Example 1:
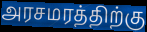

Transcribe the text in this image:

அரசமரத்திற்கு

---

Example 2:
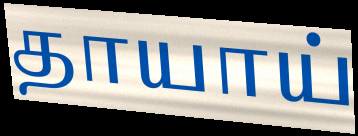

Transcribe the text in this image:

தாயாய்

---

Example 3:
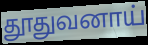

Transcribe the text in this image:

தூதுவனாய்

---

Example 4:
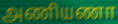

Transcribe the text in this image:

அணியணா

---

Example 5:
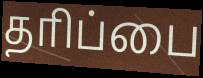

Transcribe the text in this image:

தரிப்பை